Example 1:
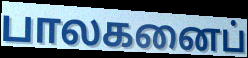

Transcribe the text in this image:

பாலகனைப்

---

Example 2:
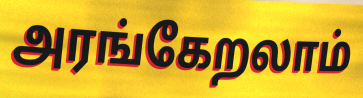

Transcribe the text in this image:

அரங்கேறலாம்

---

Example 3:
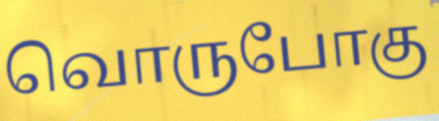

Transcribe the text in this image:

வொருபோகு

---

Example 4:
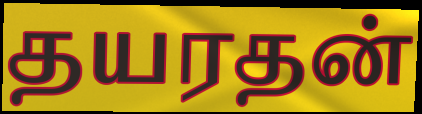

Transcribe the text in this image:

தயரதன்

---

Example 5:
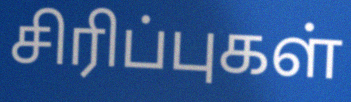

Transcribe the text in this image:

சிரிப்புகள்